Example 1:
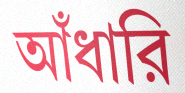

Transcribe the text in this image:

আঁধারি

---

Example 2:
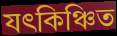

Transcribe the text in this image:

যৎকিঞ্চিত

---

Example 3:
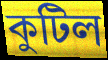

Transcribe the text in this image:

কুটিল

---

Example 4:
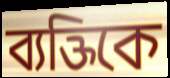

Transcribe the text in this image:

ব্যক্তিকে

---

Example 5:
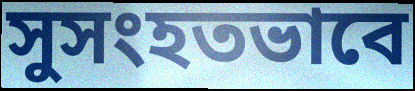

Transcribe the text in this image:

সুসংহতভাবে